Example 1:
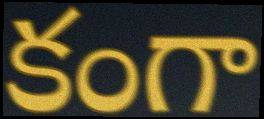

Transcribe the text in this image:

కంగా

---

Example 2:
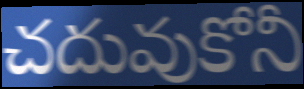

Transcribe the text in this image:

చదువుకోనీ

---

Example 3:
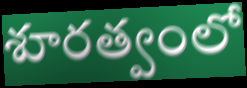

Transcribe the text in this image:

శూరత్వంలో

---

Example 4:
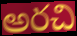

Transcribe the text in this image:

అరచి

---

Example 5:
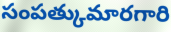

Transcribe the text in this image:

సంపత్కుమారగారి